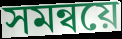
সমন্বয়ে